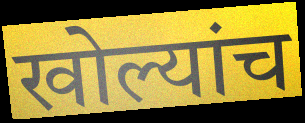
खोल्यांच